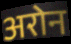
अरोन